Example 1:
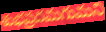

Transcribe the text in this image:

శుభప్రదమగుమని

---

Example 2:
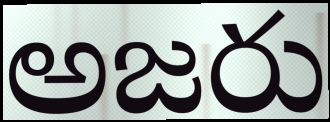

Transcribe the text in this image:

అజరు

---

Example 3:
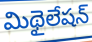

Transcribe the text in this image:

మిథైలేషన్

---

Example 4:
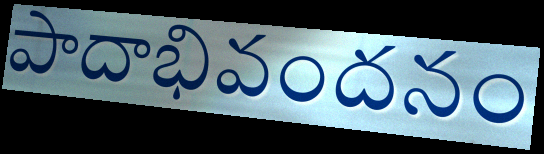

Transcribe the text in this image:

పాదాభివందనం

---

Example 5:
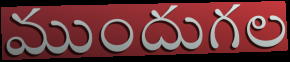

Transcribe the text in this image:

ముందుగల